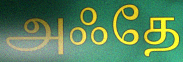
அஃதே